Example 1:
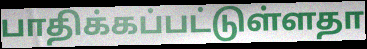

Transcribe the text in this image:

பாதிக்கப்பட்டுள்ளதா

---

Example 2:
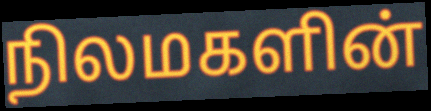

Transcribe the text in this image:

நிலமகளின்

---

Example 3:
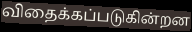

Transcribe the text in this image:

விதைக்கப்படுகின்றன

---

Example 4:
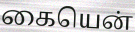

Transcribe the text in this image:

கையென்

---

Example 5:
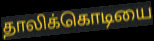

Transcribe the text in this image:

தாலிக்கொடியை